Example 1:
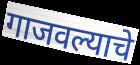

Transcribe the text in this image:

गाजवल्याचे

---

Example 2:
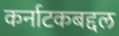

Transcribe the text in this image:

कर्नाटकबद्दल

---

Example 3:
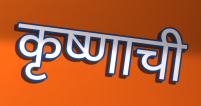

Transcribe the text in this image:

कृष्णाची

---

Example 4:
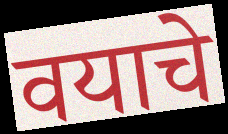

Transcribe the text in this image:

वयाचे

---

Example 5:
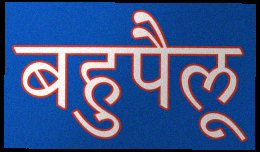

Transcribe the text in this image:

बहुपैलू